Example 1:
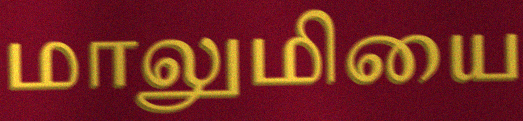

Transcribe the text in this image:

மாலுமியை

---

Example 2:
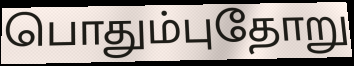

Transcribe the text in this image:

பொதும்புதோறு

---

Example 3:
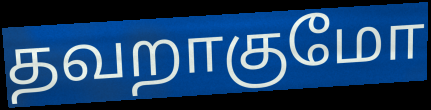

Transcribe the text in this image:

தவறாகுமோ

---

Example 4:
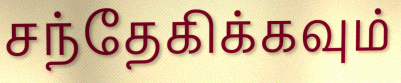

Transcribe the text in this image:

சந்தேகிக்கவும்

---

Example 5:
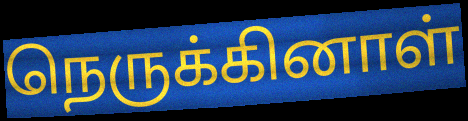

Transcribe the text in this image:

நெருக்கினாள்